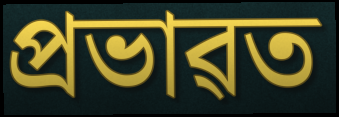
প্ৰভাৱত